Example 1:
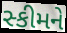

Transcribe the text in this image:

સ્કીમને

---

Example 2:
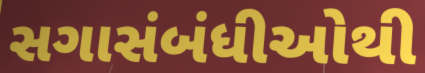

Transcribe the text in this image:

સગાસંબંધીઓથી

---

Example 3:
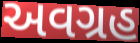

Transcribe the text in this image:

અવગ્રહ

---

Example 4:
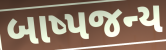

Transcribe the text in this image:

બાષ્પજન્ય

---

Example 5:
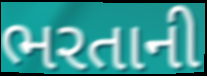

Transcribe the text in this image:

ભરતાની